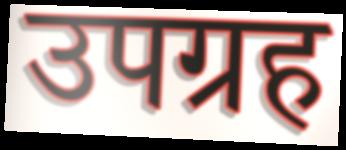
उपग्रह